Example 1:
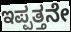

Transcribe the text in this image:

ಇಪ್ಪತ್ತನೇ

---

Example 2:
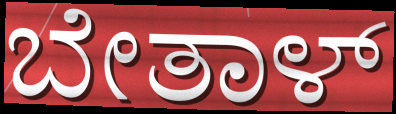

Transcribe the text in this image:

ಬೇತಾಳ್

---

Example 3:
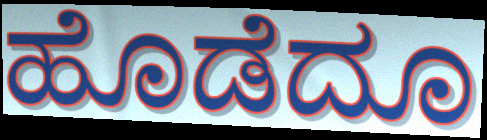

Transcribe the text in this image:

ಹೊಡೆದೂ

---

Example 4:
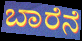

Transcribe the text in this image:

ಬಾರೆನೆ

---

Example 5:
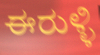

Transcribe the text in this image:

ಈರುಳ್ಳಿ